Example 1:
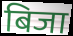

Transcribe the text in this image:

बिजा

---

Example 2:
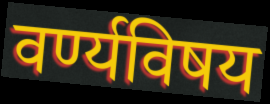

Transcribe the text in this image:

वर्ण्यविषय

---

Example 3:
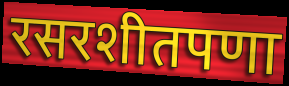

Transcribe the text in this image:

रसरशीतपणा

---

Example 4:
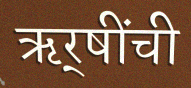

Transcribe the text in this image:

ऋर्षींची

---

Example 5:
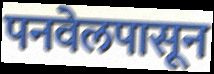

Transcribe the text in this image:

पनवेलपासून